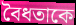
বৈধতাকে